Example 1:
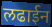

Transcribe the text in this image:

लढाईन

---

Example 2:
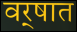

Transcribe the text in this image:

वर्षात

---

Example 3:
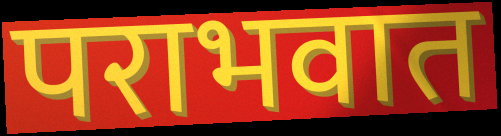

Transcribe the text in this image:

पराभवात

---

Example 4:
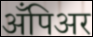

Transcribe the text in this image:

अँपिअर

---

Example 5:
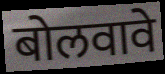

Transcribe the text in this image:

बोलवावे